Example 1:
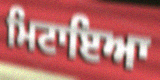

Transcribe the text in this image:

ਮਿਟਾਇਆ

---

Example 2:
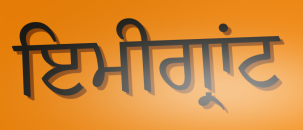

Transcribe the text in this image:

ਇਮੀਗ੍ਰਾਂਟ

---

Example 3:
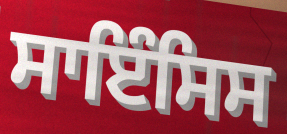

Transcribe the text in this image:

ਸਾਇੰਸਿਸ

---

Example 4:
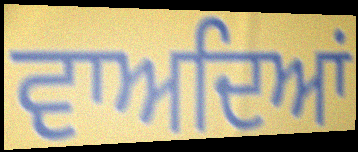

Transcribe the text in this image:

ਵਾਅਦਿਆਂ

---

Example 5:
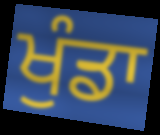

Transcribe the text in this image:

ਖੁੰਡਾ